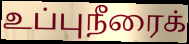
உப்புநீரைக்